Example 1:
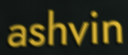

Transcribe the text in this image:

ashvin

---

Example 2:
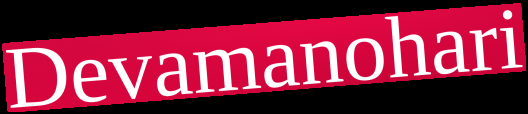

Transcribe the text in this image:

Devamanohari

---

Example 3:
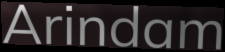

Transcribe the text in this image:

Arindam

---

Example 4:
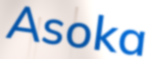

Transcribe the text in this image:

Asoka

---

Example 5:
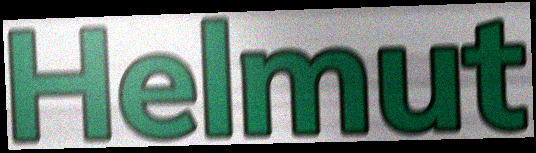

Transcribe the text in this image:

Helmut